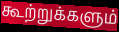
கூற்றுக்களும்